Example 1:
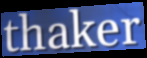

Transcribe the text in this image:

thaker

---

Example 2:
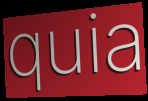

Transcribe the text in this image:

quia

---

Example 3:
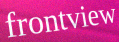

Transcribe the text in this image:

frontview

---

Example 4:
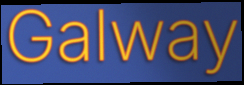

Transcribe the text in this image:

Galway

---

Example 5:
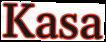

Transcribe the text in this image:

Kasa